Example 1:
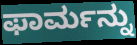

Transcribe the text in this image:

ಫಾರ್ಮನ್ನು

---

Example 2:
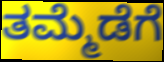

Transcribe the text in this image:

ತಮ್ಮೆಡೆಗೆ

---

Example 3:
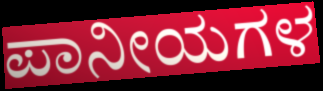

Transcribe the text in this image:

ಪಾನೀಯಗಳ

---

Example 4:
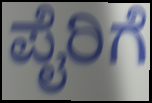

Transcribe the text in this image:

ಪೈರಿಗೆ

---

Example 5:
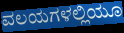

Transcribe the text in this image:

ವಲಯಗಳಲ್ಲಿಯೂ